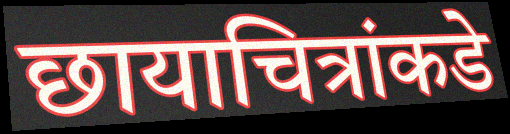
छायाचित्रांकडे